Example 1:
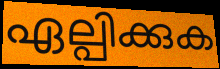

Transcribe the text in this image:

ഏല്പിക്കുക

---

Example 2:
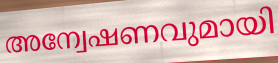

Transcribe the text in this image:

അന്വേഷണവുമായി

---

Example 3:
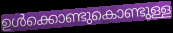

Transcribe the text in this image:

ഉൾക്കൊണ്ടുകൊണ്ടുള്ള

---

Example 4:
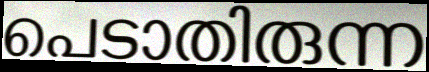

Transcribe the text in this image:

പെടാതിരുന്ന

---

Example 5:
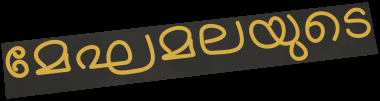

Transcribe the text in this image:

മേഘമലയുടെ